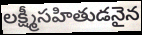
లక్ష్మీసహితుడనైన